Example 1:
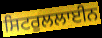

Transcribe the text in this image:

ਸਿਟਰੁਲਲਾਈਨ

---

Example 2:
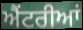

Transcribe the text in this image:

ਐਂਟਰੀਆਂ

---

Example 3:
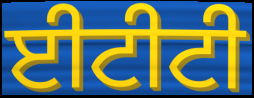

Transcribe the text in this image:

ਈਟੀਟੀ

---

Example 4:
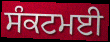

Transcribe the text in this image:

ਸੰਕਟਮਈ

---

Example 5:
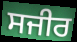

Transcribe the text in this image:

ਸਜੀਰ